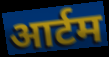
आर्टम